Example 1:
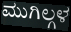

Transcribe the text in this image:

ಮುಗಿಲ್ಗಳ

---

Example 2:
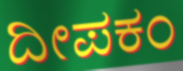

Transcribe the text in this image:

ದೀಪಕಂ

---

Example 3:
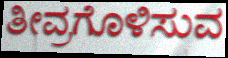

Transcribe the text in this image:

ತೀವ್ರಗೊಳಿಸುವ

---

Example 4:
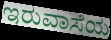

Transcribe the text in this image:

ಇರುವಾಸೆಯ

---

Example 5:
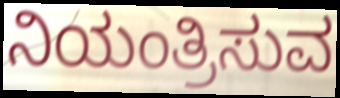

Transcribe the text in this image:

ನಿಯಂತ್ರಿಸುವ